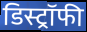
डिस्ट्रॉफी